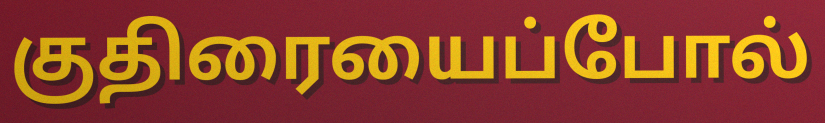
குதிரையைப்போல்